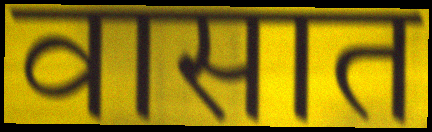
वासात